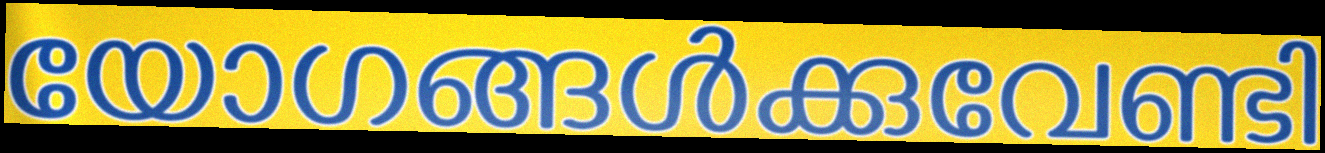
യോഗങ്ങൾക്കുവേണ്ടി